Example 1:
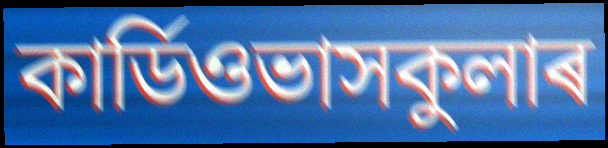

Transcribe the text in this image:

কাৰ্ডিওভাসকুলাৰ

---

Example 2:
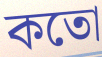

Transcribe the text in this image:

কতো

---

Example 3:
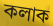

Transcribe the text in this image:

কলাক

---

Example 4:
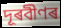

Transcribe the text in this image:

দূৰবীণৰ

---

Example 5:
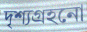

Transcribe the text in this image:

দৃশ্যগ্ৰহনো